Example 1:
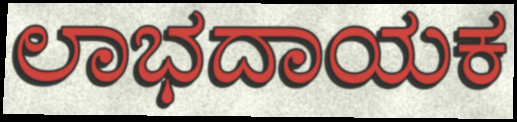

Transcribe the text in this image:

ಲಾಭದಾಯಕ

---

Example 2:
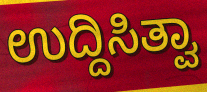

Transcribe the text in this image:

ಉದ್ದಿಸಿತ್ವಾ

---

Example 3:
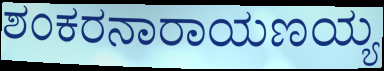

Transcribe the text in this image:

ಶಂಕರನಾರಾಯಣಯ್ಯ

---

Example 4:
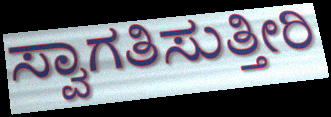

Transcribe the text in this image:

ಸ್ವಾಗತಿಸುತ್ತೀರಿ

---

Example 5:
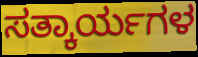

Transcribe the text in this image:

ಸತ್ಕಾರ್ಯಗಳ